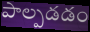
పాల్పడడం